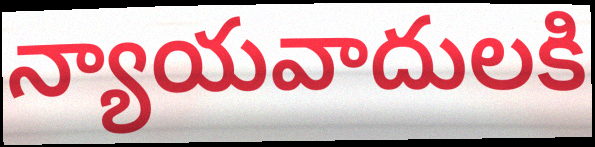
న్యాయవాదులకి